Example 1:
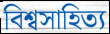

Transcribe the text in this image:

বিশ্বসাহিত্য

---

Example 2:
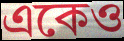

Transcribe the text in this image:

একেও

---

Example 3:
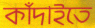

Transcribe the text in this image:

কাঁদাইতে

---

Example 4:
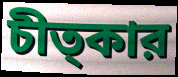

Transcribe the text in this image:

চীত্কার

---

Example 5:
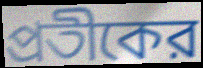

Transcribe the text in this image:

প্রতীকের